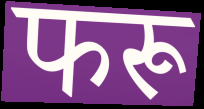
फरू